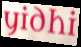
yidhi